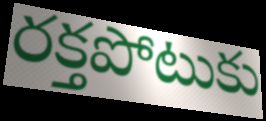
రక్తపోటుకు